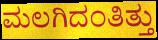
ಮಲಗಿದಂತಿತ್ತು